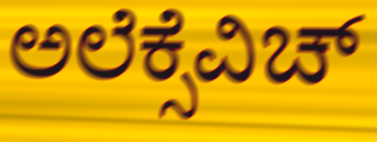
ಅಲೆಕ್ಸೆವಿಚ್